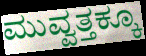
ಮುವ್ವತ್ತಕ್ಕೂ